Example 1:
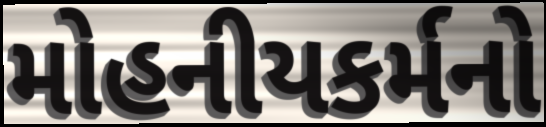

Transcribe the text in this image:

મોહનીયકર્મનો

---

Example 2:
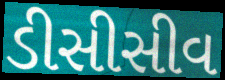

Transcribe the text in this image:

ડીસીસીવ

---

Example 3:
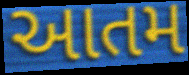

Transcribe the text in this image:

આતમ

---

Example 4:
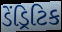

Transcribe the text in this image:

ડેંડ્રિટિક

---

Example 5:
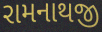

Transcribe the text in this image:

રામનાથજી